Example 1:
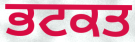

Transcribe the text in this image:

ਭਟਕਤ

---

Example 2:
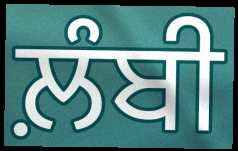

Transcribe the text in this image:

ਲ਼ੰਬੀ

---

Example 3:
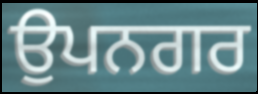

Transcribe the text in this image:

ਉਪਨਗਰ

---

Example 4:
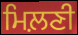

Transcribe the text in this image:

ਮਿਲ਼ਣੀ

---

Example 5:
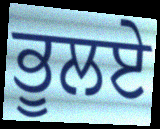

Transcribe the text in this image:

ਭੂਲਏ